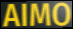
AIMO